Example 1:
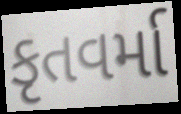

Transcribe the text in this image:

કૃતવર્મા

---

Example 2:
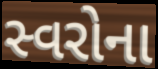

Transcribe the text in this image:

સ્વરોના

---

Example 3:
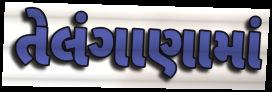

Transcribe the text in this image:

તેલંગાણામાં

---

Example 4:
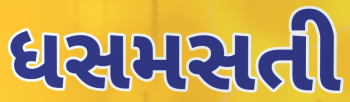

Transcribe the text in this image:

ધસમસતી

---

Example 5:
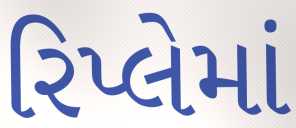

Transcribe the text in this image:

રિપ્લેમાં